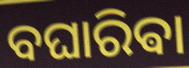
ବଘାରିଵା